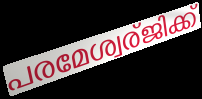
പരമേശ്വര്ജിക്ക്